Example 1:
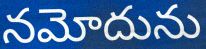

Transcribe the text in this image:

నమోదును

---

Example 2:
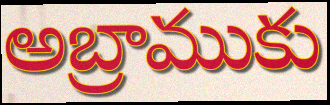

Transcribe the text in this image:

అబ్రాముకు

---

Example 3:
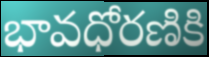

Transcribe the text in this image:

భావధోరణికి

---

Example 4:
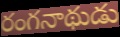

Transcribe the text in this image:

రంగనాథుడు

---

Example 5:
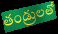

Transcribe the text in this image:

తండ్రులతో